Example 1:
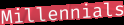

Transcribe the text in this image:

Millennials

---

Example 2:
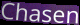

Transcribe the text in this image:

Chasen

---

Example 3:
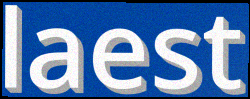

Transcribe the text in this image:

laest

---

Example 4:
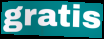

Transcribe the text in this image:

gratis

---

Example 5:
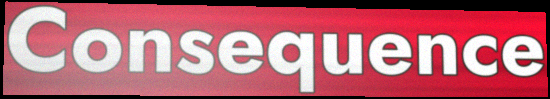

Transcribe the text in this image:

Consequence